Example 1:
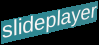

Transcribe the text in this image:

slideplayer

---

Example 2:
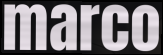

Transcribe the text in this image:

marco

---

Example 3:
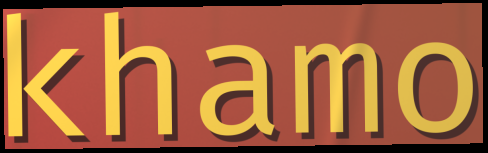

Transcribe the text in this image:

khamo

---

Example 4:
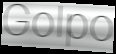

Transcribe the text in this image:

Golpo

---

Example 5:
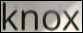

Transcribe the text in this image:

knox